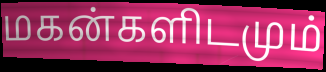
மகன்களிடமும்